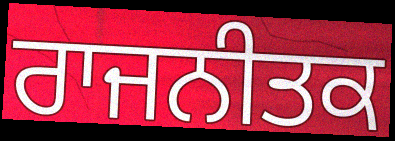
ਰਾਜਨੀਤਕ